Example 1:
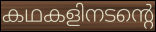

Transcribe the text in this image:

കഥകളിനടന്റെ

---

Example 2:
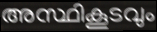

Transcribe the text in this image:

അസ്ഥികൂടവും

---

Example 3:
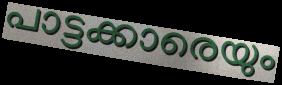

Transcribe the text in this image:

പാട്ടക്കാരെയും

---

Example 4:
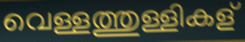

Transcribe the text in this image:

വെള്ളത്തുള്ളികള്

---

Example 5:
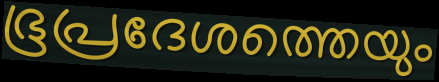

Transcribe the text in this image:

ഭൂപ്രദേശത്തെയും